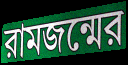
রামজন্মের